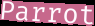
Parrot